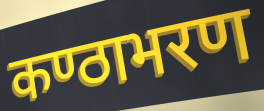
कण्ठाभरण